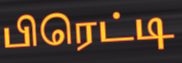
பிரெட்டி